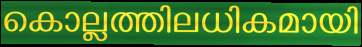
കൊല്ലത്തിലധികമായി